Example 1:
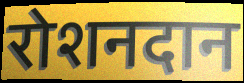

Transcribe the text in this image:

रोशनदान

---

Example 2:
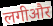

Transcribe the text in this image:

लगीऔर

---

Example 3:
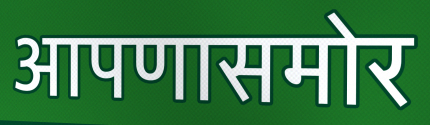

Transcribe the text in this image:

आपणासमोर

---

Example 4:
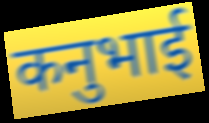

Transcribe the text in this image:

कनुभाई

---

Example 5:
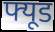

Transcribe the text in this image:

फ्यूड